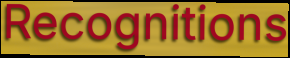
Recognitions